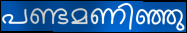
പണ്ടമണിഞ്ഞു